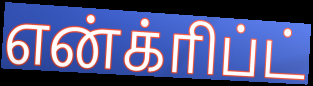
என்க்ரிப்ட்